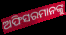
ଅଫିସରମାନଙ୍କୁ